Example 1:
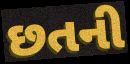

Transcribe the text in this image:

છતની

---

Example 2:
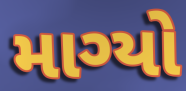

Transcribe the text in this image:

માગ્યો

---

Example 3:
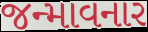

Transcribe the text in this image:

જન્માવનાર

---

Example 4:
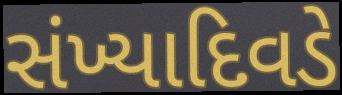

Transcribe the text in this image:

સંખ્યાદિવડે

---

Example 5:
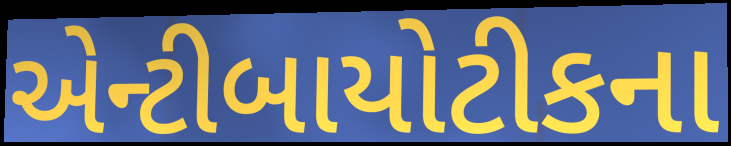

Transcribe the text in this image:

એન્ટીબાયોટીકના